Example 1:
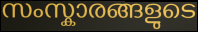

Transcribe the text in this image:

സംസ്കാരങ്ങളുടെ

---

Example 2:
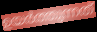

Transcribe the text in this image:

ഉയർത്തുന്നത്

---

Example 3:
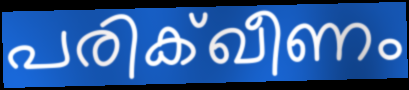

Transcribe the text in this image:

പരിക്ഖീണം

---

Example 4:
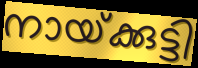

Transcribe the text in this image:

നായ്‌ക്കുട്ടി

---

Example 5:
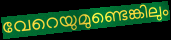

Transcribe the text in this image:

വേറെയുമുണ്ടെങ്കിലും